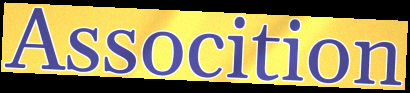
Assocition